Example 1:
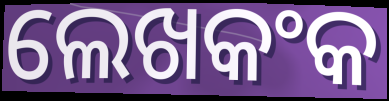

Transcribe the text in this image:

ଲେଖକଂକ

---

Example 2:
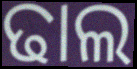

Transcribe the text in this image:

ଢାଲ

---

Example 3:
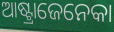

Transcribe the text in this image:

ଆଷ୍ଟ୍ରାଜେନେକା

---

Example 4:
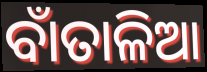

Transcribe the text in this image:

ବାଁତାଳିଆ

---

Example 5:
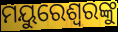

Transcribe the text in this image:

ମୟୁରେଶ୍ବରଙ୍କୁ